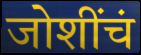
जोशींचं